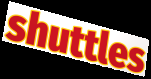
shuttles